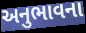
અનુભાવના